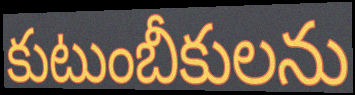
కుటుంబీకులను